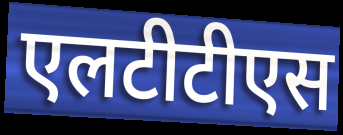
एलटीटीएस